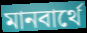
মানবার্থে